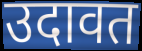
उदावत